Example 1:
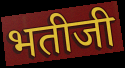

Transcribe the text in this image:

भतीजी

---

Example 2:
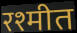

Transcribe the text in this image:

रश्मीत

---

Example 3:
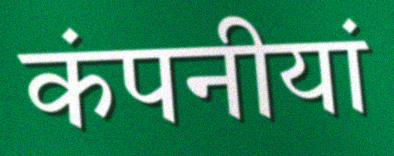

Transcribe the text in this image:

कंपनीयां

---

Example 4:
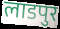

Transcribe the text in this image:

लाडपुर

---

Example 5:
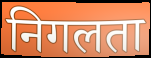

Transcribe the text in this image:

निगलता